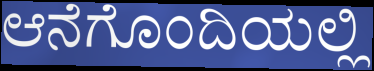
ಆನೆಗೊಂದಿಯಲ್ಲಿ